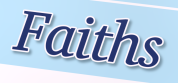
Faiths